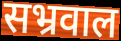
सभ्रवाल